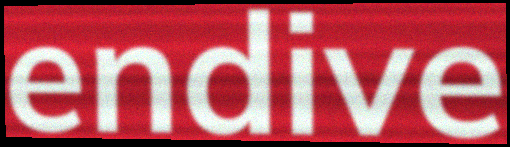
endive